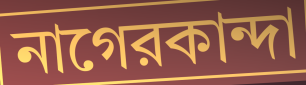
নাগেরকান্দা